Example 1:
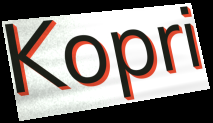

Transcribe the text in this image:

Kopri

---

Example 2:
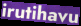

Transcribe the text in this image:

irutihavu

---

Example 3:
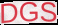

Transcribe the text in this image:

DGS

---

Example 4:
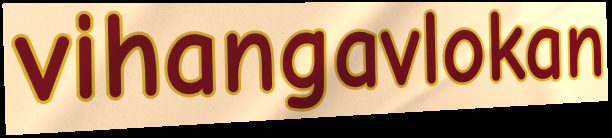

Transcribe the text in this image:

vihangavlokan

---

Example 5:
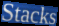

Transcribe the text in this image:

Stacks